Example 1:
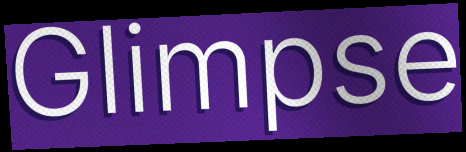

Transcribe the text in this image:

Glimpse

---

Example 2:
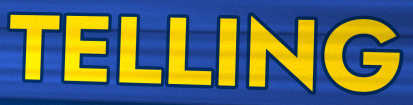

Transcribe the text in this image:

TELLING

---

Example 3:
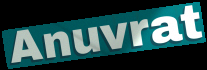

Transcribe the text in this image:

Anuvrat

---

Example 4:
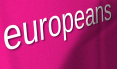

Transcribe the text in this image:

europeans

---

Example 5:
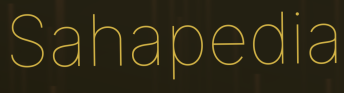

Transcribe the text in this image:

Sahapedia